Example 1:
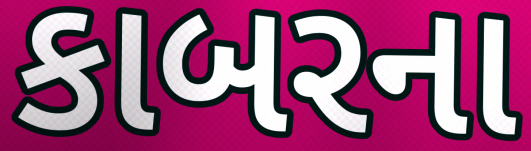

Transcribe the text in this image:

કાબરના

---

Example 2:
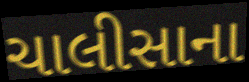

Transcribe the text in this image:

ચાલીસાના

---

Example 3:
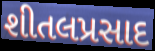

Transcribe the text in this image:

શીતલપ્રસાદ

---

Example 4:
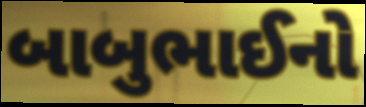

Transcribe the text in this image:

બાબુભાઈનો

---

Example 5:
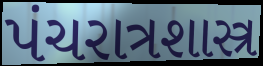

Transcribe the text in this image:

પંચરાત્રશાસ્ત્ર